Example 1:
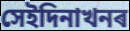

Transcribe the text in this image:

সেইদিনাখনৰ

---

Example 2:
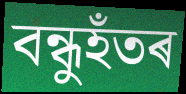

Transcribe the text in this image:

বন্ধুহঁতৰ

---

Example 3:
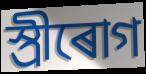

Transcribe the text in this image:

স্ত্ৰীৰোগ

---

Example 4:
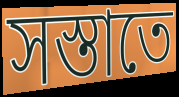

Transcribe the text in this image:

সস্তাতে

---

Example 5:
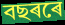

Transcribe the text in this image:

বছৰৰে